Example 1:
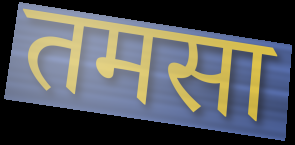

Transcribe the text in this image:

तमसा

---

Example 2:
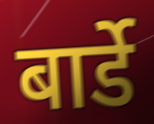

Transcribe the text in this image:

बार्डे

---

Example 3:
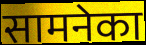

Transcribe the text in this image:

सामनेका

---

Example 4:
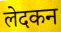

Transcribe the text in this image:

लेदकन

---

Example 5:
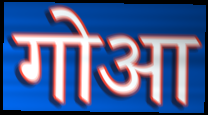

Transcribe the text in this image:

गोआ